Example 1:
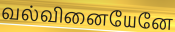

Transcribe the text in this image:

வல்வினையேனே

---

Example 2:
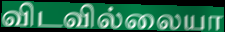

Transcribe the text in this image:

விடவில்லையா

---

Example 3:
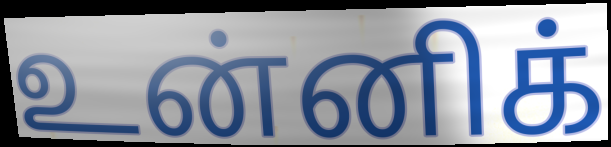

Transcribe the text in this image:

உன்னிக்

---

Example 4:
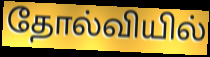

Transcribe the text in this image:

தோல்வியில்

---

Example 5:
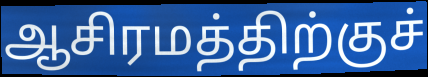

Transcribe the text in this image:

ஆசிரமத்திற்குச்